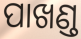
ପାଖଣ୍ଡ